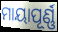
ମାୟାପୂର୍ଣ୍ଣ